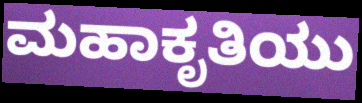
ಮಹಾಕೃತಿಯು